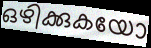
ഒഴിക്കുകയോ